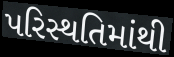
પરિસ્થતિમાંથી